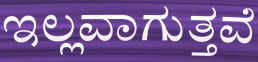
ಇಲ್ಲವಾಗುತ್ತವೆ